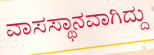
ವಾಸಸ್ಥಾನವಾಗಿದ್ದು